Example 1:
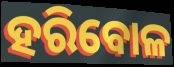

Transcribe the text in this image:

ହରିବୋଳ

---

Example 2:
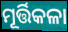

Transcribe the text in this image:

ମୂର୍ତ୍ତିକଳା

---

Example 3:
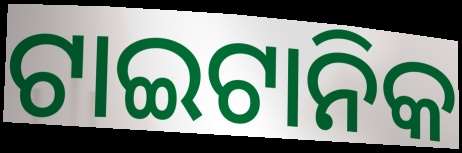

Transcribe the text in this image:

ଟାଇଟାନିକ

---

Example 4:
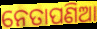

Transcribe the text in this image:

ନେତାପଣିଆ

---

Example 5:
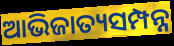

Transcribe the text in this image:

ଆଭିଜାତ୍ୟସମ୍ପନ୍ନ